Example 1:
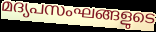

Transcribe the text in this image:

മദ്യപസംഘങ്ങളുടെ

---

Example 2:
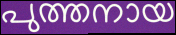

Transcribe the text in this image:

പുത്തനായ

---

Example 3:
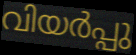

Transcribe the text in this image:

വിയർപ്പു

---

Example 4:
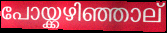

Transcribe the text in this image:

പോയ്ക്കഴിഞ്ഞാല്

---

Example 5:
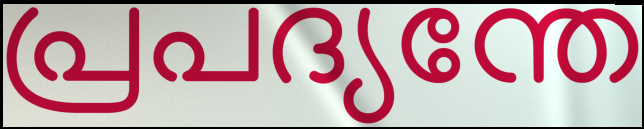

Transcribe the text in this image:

പ്രപദ്യന്തേ